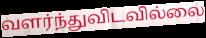
வளர்ந்துவிடவில்லை